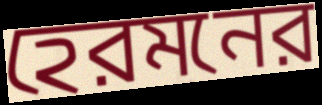
হেরমনের